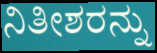
ನಿತೀಶರನ್ನು